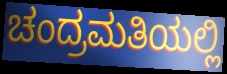
ಚಂದ್ರಮತಿಯಲ್ಲಿ